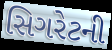
સિગરેટની